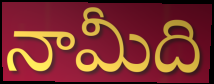
నామీది